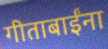
गीताबाईंना